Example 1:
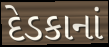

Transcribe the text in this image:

દેડકાનાં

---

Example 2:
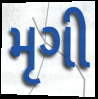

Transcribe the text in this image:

મૃગી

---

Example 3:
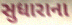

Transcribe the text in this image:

સુધારાના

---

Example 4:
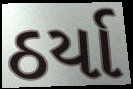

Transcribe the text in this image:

ઠર્યા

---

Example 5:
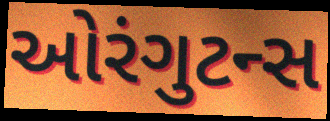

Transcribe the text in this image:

ઓરંગુટન્સ